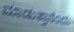
ಮಾಡುತ್ತಾನೆಂದು